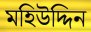
মহিউদ্দিন